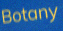
Botany